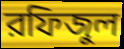
রফিজুল